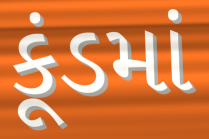
કૂંડમાં